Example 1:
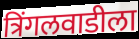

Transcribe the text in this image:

त्रिंगलवाडीला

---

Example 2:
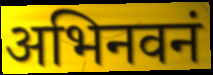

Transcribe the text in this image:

अभिनवनं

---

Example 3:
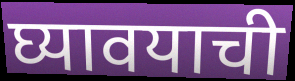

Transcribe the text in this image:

घ्यावयाची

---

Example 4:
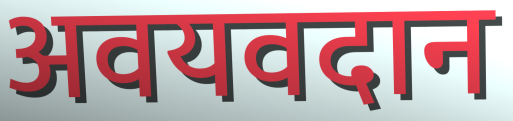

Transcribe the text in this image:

अवयवदान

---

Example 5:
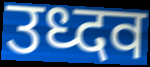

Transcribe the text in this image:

उध्दव